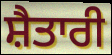
ਸ਼ੈਤਾਰੀ